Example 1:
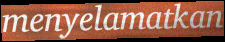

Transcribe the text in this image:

menyelamatkan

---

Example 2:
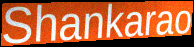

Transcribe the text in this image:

Shankarao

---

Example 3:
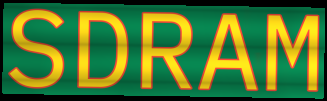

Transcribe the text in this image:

SDRAM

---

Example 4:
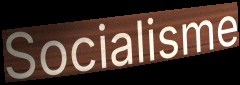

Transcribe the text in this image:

Socialisme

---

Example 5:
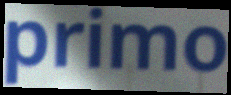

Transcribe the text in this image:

primo